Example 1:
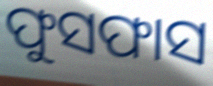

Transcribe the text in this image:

ଫୁସଫାସ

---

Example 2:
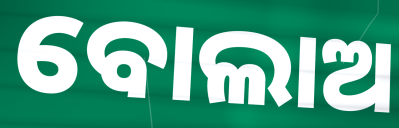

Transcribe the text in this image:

ବୋଲାଅ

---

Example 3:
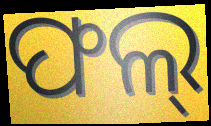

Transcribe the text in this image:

ଫଲ୍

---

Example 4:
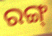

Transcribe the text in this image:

ରଙ୍ଗ୍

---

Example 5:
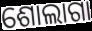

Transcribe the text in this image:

ଶୋଲାଗା